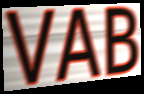
VAB